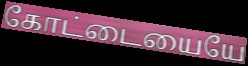
கோட்டையையே